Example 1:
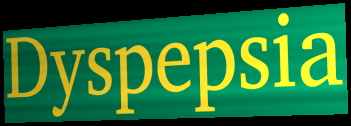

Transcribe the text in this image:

Dyspepsia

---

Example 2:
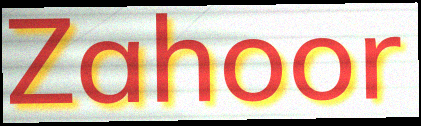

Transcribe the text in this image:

Zahoor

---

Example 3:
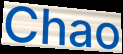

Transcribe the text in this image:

Chao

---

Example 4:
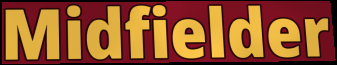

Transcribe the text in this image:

Midfielder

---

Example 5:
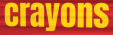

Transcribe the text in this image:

crayons